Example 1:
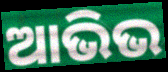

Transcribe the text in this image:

ଆଭିଭ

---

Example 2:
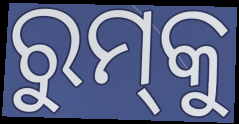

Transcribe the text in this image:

ରୁମ୍‍କୁ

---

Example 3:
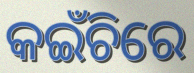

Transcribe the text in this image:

କଇଁଚିରେ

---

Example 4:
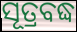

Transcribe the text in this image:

ସୂତ୍ରବଦ୍ଧ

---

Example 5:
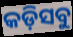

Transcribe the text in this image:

କଡ଼ିସବୁ